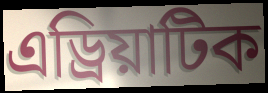
এড্ৰিয়াটিক